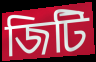
জিটি